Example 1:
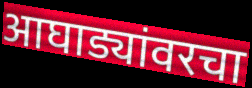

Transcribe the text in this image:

आघाड्यांवरचा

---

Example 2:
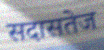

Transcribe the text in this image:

सदासतेज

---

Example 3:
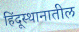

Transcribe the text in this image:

हिंदूस्थानातील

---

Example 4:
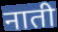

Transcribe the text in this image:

नाती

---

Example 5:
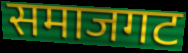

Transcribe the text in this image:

समाजगट